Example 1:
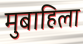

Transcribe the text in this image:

मुबाहिला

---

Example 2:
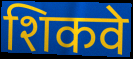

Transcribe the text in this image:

शिकवे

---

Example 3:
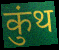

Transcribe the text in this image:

कुंथ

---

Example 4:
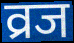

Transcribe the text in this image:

व्रज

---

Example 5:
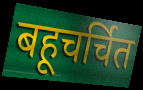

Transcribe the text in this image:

बहूचर्चित